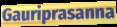
Gauriprasanna